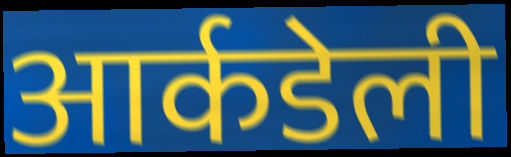
आर्कडेली